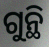
ଗୁନ୍ଥି